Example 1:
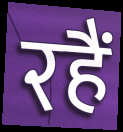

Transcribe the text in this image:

रहैं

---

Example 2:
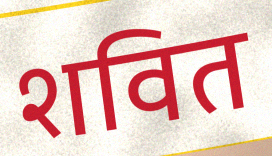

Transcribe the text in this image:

शवित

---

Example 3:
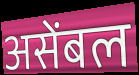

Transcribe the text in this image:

असेंबल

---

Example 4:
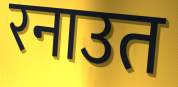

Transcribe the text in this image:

रनाउत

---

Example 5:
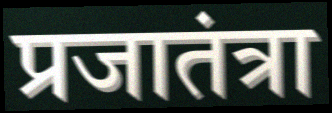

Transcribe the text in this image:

प्रजातंत्रा